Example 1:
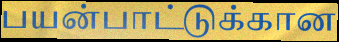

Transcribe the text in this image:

பயன்பாட்டுக்கான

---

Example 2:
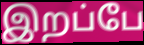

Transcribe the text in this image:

இறப்பே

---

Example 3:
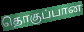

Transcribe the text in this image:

தொகுப்பான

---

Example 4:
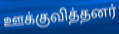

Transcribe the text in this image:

ஊக்குவித்தனர்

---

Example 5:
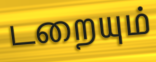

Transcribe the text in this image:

டறையும்